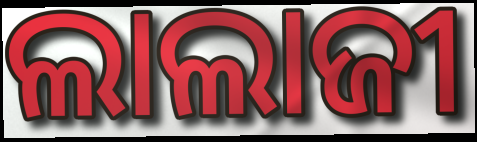
ଲାଲାଜୀ